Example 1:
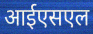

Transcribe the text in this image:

आईएसएल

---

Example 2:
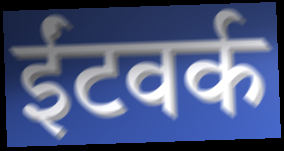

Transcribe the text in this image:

ईंटवर्क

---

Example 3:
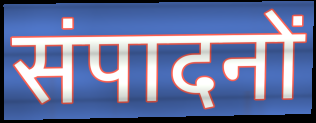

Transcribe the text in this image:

संपादनों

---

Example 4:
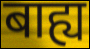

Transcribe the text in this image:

बाह्य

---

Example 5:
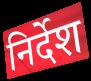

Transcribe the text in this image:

निर्देश